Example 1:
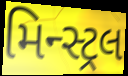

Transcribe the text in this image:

મિન્સ્ટ્રલ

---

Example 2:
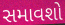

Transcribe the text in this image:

સમાવશો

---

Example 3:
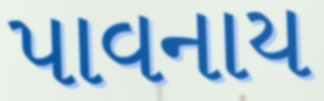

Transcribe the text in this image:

પાવનાય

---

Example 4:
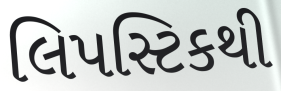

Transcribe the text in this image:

લિપસ્ટિકથી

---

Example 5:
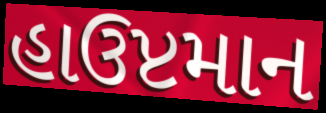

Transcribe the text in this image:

હાઉપ્ટમાન